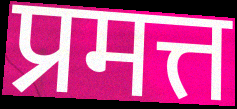
प्रमत्त